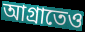
আগ্রাতেও